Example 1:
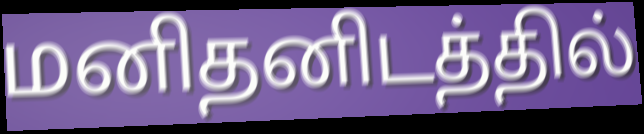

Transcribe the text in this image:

மனிதனிடத்தில்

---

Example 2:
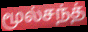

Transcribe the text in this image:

மூல்சந்த்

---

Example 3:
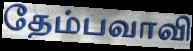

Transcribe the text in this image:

தேம்பவாவி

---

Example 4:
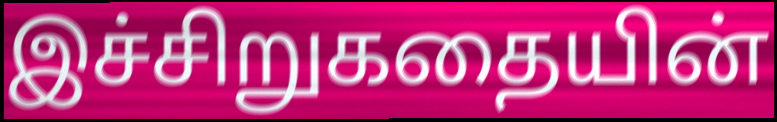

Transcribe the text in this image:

இச்சிறுகதையின்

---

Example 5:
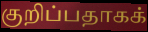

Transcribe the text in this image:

குறிப்பதாகக்